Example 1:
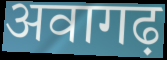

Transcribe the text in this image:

अवागढ़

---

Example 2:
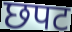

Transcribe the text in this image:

छपट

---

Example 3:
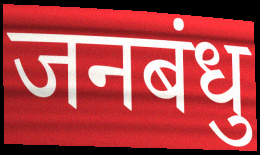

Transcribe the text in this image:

जनबंधु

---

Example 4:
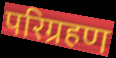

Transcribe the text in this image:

परिग्रहण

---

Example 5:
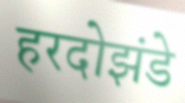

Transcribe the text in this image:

हरदोझंडे